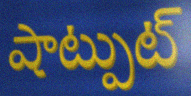
షాట్పుట్